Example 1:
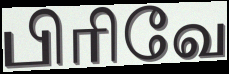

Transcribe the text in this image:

பிரிவே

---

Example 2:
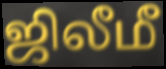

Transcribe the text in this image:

ஜிலீமீ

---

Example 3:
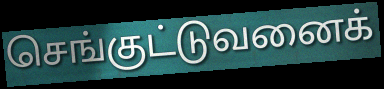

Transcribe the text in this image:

செங்குட்டுவனைக்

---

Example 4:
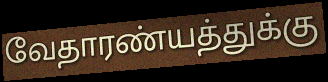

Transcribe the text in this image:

வேதாரண்யத்துக்கு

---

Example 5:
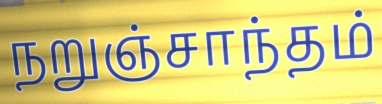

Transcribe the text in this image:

நறுஞ்சாந்தம்